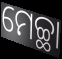
ମେଚ୍ଛା